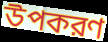
উপকরণ